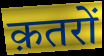
क़तरों